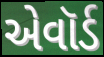
એવૉર્ડ